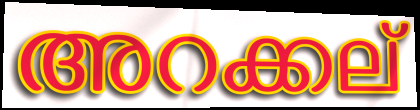
അറക്കല്